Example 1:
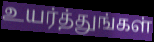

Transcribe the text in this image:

உயர்த்துங்கள்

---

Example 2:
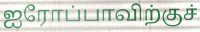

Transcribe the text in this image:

ஐரோப்பாவிற்குச்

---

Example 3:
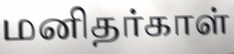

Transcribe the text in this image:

மனிதர்காள்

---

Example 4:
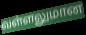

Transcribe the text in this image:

வள்ளலுமான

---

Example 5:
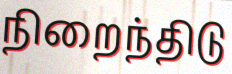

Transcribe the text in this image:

நிறைந்திடு